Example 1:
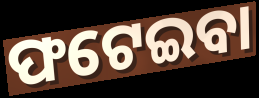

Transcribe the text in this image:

ଫଟେଇବା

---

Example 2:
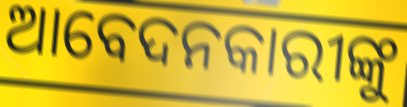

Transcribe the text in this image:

ଆବେଦନକାରୀଙ୍କୁ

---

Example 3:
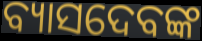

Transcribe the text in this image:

ବ୍ୟାସଦେବଙ୍କ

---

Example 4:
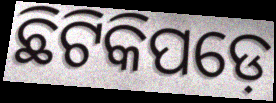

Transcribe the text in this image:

ଛିଟିକିପଡ଼େ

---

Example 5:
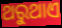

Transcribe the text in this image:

ଥରୁଥାଏ